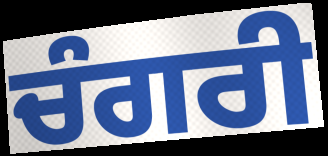
ਚੰਗਰੀ